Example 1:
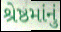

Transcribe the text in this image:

શ્રેષ્ઠમાંનું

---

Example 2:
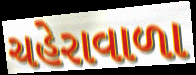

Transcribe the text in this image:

ચહેરાવાળા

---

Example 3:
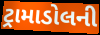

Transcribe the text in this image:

ટ્રામાડોલની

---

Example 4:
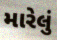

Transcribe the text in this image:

મારેલું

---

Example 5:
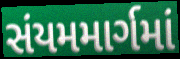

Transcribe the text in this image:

સંયમમાર્ગમાં